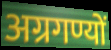
अग्रगण्यों